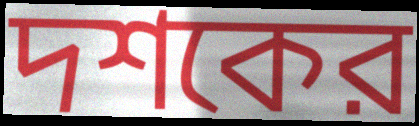
দশকের